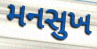
મનસુખ